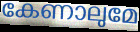
കേണാലുമേ